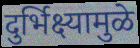
दुर्भिक्ष्यामुळे